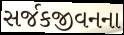
સર્જકજીવનના